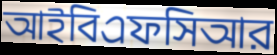
আইবিএফসিআর